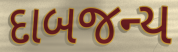
દાબજન્ય